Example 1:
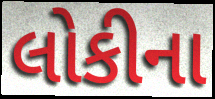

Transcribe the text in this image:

લોકીના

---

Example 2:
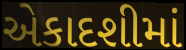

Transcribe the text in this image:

એકાદશીમાં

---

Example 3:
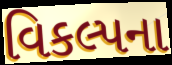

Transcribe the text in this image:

વિકલ્પના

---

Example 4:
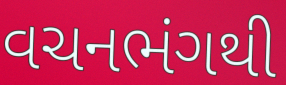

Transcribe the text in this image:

વચનભંગથી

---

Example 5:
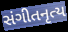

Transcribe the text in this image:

સંગીતનૃત્ય